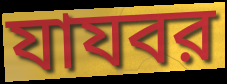
যাযবর